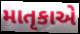
માતૃકાએ